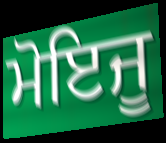
ਮੋਇਜੂ